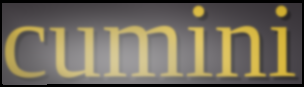
cumini